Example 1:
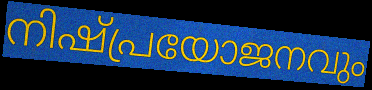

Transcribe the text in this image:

നിഷ്പ്രയോജനവും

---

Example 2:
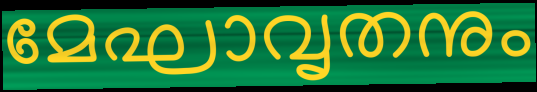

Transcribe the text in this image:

മേഘാവൃതനും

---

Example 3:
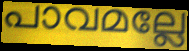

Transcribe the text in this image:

പാവമല്ലേ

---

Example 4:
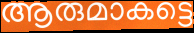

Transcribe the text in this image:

ആരുമാകട്ടെ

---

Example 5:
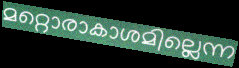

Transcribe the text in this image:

മറ്റൊരാകാശമില്ലെന്ന